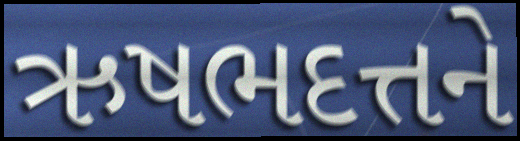
ઋષભદત્તને